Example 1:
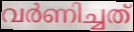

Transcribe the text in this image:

വർണിച്ചത്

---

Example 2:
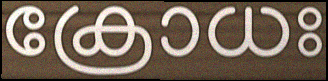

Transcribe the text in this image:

ക്രോധഃ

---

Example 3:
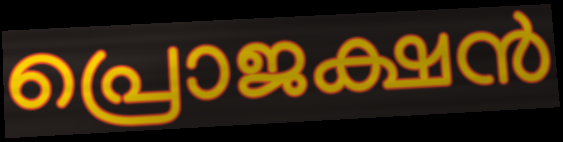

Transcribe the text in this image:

പ്രൊജക്ഷൻ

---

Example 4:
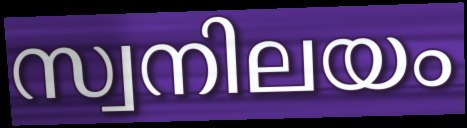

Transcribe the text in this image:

സ്വനിലയം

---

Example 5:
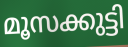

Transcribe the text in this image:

മൂസക്കുട്ടി